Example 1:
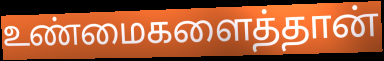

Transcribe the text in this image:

உண்மைகளைத்தான்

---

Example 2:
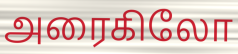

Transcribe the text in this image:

அரைகிலோ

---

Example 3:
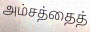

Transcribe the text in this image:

அம்சத்தைத்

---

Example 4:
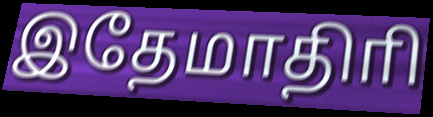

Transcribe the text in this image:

இதேமாதிரி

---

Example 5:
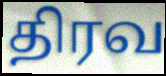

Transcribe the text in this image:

திரவ